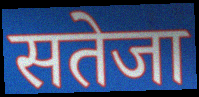
सतेजा